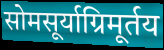
सोमसूर्याग्रिमूर्तय